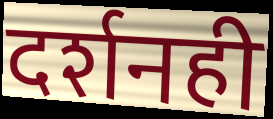
दर्शनही